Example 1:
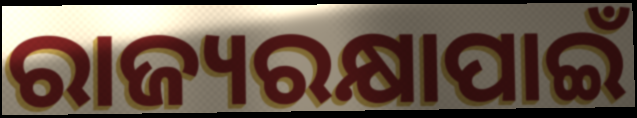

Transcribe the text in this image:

ରାଜ୍ୟରକ୍ଷାପାଇଁ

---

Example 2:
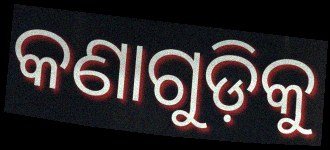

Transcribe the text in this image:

କଣାଗୁଡ଼ିକୁ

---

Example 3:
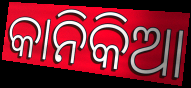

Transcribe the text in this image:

କାନିକିଆ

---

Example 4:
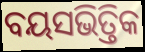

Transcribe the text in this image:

ବୟସଭିତ୍ତିକ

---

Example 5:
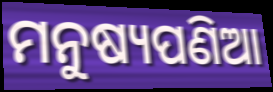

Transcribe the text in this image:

ମନୁଷ୍ୟପଣିଆ